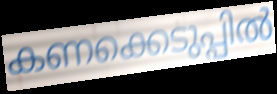
കണക്കെടുപ്പിൽ